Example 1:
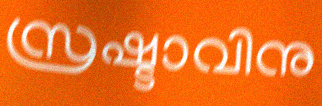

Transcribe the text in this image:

സ്രഷ്ടാവിനു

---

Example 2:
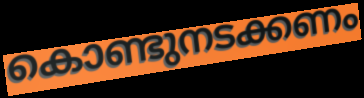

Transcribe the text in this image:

കൊണ്ടുനടക്കണം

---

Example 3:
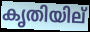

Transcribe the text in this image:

കൃതിയില്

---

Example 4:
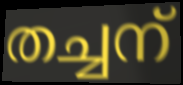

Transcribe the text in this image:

തച്ചന്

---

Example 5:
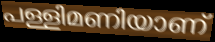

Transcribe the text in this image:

പള്ളിമണിയാണ്